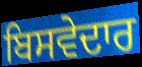
ਬਿਸਵੇਦਾਰ